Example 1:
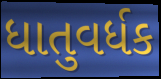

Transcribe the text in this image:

ધાતુવર્ધક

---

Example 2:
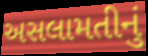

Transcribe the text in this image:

અસલામતીનું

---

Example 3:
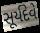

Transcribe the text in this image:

સૂર્યદેવે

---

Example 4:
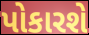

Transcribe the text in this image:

પોકારશે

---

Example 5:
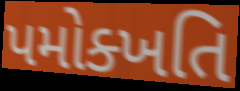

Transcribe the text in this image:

પમોક્ખતિ